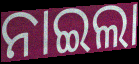
ନାଇଲା